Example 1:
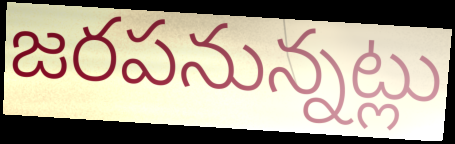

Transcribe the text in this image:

జరపనున్నట్లు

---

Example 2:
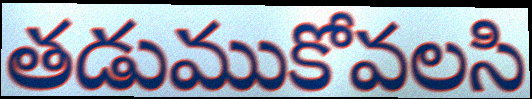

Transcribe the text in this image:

తడుముకోవలసి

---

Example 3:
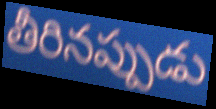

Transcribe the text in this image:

తీరినప్పుడు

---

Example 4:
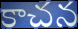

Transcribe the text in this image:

కాచన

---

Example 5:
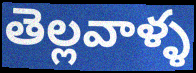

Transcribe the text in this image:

తెల్లవాళ్ళ